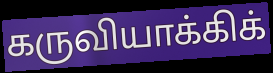
கருவியாக்கிக்